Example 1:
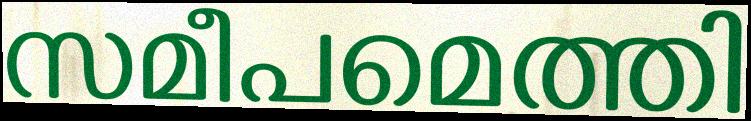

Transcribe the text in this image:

സമീപമെത്തി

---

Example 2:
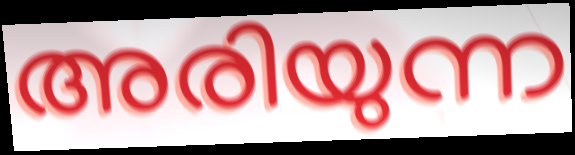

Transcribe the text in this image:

അരിയുന്ന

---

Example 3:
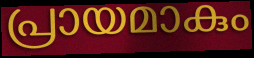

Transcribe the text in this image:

പ്രായമാകും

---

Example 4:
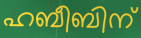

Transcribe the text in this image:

ഹബീബിന്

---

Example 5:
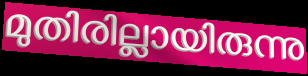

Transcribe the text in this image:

മുതിരില്ലായിരുന്നു